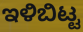
ಇಳಿಬಿಟ್ಟ